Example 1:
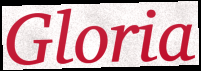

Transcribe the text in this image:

Gloria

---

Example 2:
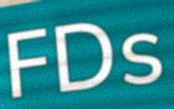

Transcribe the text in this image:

FDs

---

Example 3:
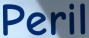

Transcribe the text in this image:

Peril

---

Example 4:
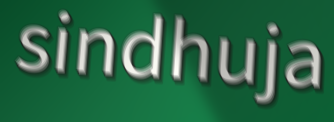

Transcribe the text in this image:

sindhuja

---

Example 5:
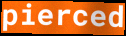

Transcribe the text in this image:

pierced